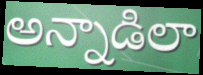
అన్నాడిలా